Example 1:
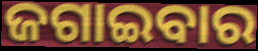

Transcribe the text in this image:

ଜଗାଇବାର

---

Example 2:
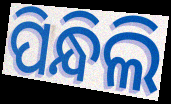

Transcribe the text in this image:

ପିନ୍ଧିଲି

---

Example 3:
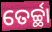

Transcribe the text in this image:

ତେର୍ଚ୍ଛା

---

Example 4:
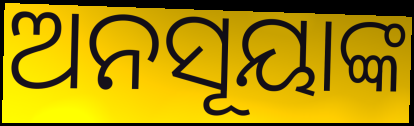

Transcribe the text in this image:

ଅନସୂୟାଙ୍କ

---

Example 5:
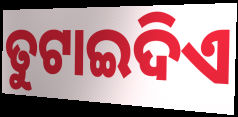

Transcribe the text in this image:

ତୁଟାଇଦିଏ